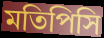
মতিপিসি